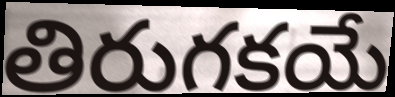
తిరుగకయే